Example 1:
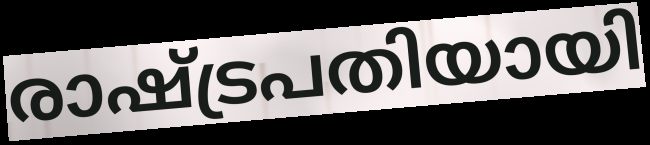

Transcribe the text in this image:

രാഷ്ട്രപതിയായി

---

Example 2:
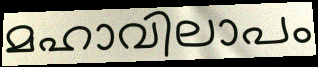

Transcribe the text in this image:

മഹാവിലാപം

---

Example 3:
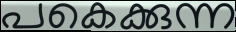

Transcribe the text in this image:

പകെക്കുന്ന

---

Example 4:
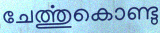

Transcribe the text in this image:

ചേൎത്തുകൊണ്ടു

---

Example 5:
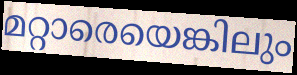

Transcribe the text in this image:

മറ്റാരെയെങ്കിലും